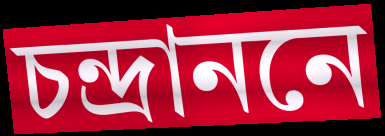
চন্দ্রাননে